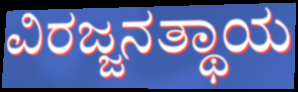
ವಿರಜ್ಜನತ್ಥಾಯ